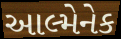
આલ્મેનેક